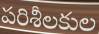
పరిశీలకుల